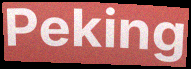
Peking